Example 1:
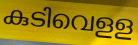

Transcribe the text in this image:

കുടിവെളള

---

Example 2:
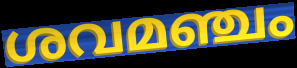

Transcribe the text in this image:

ശവമഞ്ചം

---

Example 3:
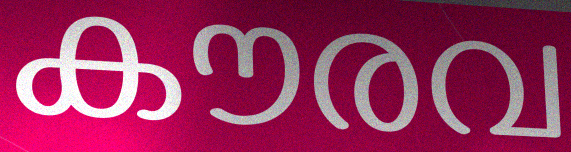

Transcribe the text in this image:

കൗരവ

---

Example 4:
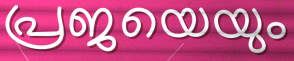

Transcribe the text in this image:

പ്രജയെയും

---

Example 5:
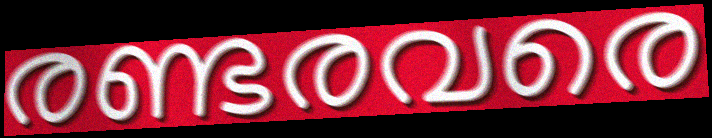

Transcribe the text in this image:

രണ്ടരവരെ